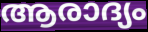
ആരാദ്യം